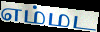
எம்மட